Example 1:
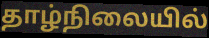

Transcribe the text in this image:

தாழ்நிலையில்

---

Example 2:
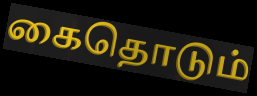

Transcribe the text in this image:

கைதொடும்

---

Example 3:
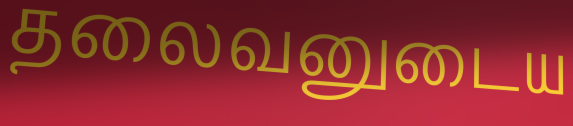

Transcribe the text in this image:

தலைவனுடைய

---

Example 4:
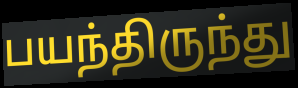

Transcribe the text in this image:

பயந்திருந்து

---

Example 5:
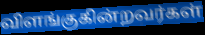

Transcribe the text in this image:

விளங்குகின்றவர்கள்